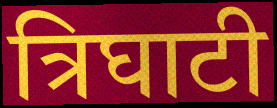
त्रिघाटी